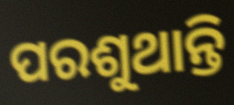
ପରଶୁଥାନ୍ତି